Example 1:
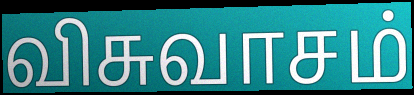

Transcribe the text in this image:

விசுவாசம்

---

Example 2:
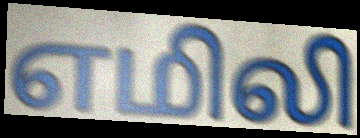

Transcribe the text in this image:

எமிலி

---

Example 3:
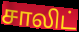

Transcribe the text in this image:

சாலிட்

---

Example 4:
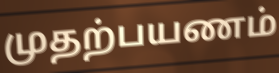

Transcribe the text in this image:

முதற்பயணம்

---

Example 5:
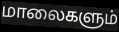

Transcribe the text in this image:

மாலைகளும்